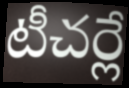
టీచర్లే